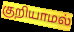
குறியாமல்